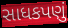
સાધકપણું